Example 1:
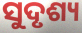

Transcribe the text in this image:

ସୁଦୃଶ୍ୟ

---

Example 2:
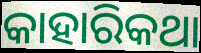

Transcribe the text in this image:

କାହାରିକଥା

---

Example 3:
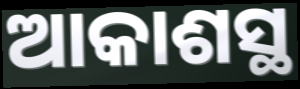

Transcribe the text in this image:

ଆକାଶସ୍ଥ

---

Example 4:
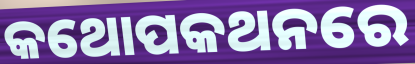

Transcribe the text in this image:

କଥୋପକଥନରେ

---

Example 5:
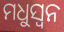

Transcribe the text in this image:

ମଧୁସ୍ୱନ